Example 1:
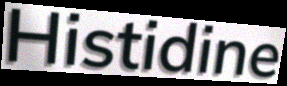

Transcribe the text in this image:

Histidine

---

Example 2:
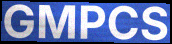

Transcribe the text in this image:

GMPCS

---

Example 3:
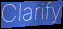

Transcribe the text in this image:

Clarify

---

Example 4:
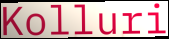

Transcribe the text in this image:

Kolluri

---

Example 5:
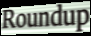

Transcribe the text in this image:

Roundup